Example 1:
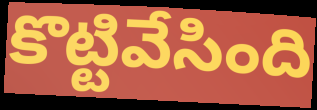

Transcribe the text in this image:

కొట్టివేసింది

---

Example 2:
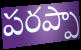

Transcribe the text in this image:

పరప్పా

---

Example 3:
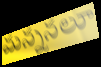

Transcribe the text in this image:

మన్ననలూ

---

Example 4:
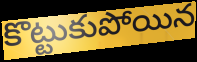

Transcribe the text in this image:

కొట్టుకుపోయిన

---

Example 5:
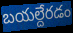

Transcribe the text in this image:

బయల్దేరడం